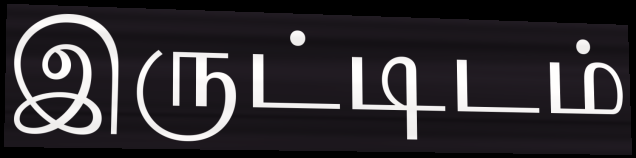
இருட்டிடம்